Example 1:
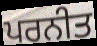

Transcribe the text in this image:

ਪਰਨੀਤ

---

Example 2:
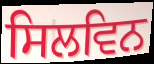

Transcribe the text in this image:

ਸਿਲਵਿਨ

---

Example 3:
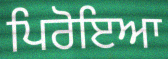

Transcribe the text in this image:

ਪਿਰੋਇਆ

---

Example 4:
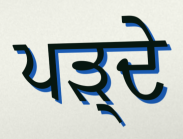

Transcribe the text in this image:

ਪੜ੍ਦੇ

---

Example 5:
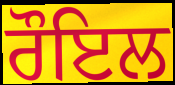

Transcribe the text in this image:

ਰੌਇਲ